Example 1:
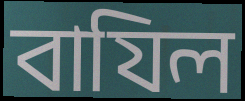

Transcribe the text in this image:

বাযিল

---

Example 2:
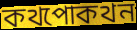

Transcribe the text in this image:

কথপোকথন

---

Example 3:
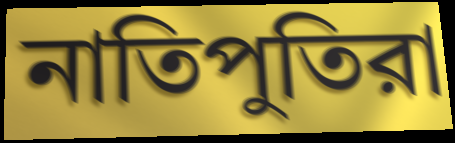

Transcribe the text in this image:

নাতিপুতিরা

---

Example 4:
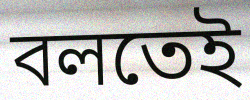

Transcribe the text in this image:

বলতেই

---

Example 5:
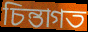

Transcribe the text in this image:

চিন্তাগত